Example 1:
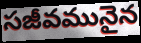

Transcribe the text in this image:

సజీవమునైన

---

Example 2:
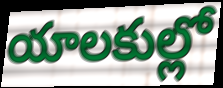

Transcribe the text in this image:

యాలకుల్లో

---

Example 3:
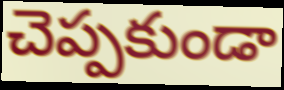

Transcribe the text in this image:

చెప్పకుండా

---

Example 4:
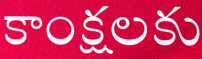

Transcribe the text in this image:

కాంక్షలకు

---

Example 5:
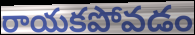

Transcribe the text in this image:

రాయకపోవడం